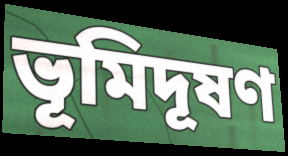
ভূমিদূষণ